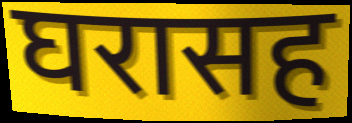
घरासह